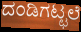
ದಂಡಿಗಟ್ಟಲೆ